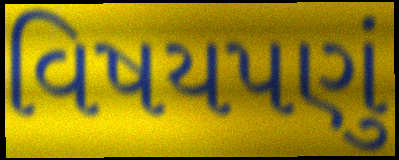
વિષયપણું